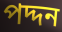
পদ্দন